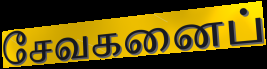
சேவகனைப்